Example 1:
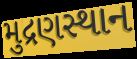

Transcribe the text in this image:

મુદ્રણસ્થાન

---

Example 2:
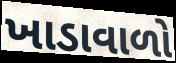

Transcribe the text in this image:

ખાડાવાળો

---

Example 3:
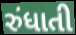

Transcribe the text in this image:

રુંધાતી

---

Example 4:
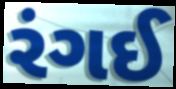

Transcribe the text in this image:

રંગઈ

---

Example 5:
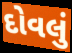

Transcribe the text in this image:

દોવલું